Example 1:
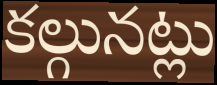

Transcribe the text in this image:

కల్గునట్లు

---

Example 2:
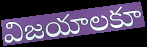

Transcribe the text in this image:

విజయాలకూ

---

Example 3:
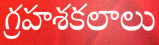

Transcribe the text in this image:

గ్రహశకలాలు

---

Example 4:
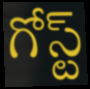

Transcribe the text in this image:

గోస్ట్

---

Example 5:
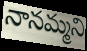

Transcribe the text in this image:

నానమ్మని